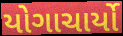
યોગાચાર્યો